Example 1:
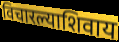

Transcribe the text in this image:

विचारल्याशिवाय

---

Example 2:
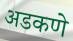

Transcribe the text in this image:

अडकणे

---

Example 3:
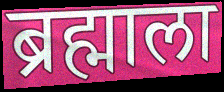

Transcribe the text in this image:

ब्रह्माला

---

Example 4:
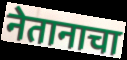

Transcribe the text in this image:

नेतानाचा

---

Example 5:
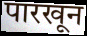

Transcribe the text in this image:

पारखून